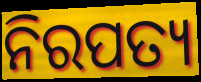
ନିରପତ୍ୟ